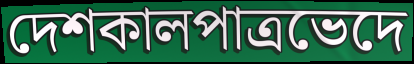
দেশকালপাত্রভেদে